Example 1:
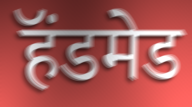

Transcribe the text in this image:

हॅंडमेड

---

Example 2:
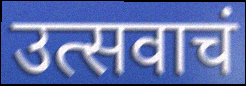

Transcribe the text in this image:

उत्सवाचं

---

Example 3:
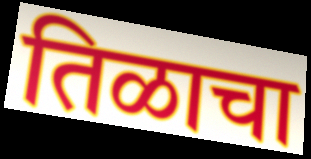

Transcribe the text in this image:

तिळाचा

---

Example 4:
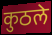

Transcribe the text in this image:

कुठले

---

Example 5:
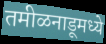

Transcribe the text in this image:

तमीळनाडूमध्ये